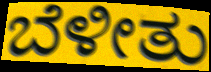
ಬೆಳೀತು